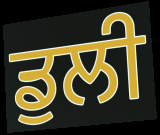
ਡੁਲੀ